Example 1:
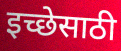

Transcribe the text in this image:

इच्छेसाठी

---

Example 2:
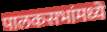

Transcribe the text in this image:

पालकसभांमध्ये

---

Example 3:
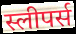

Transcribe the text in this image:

स्लीपर्स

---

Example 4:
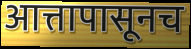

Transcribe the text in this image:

आत्तापासूनच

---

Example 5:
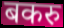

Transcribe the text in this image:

बकरु